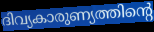
ദിവ്യകാരുണ്യത്തിന്റെ